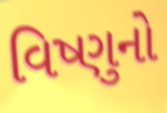
વિષ્ણુનો